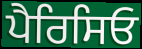
ਪੈਰਿਸਿਓ